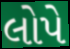
લોપે